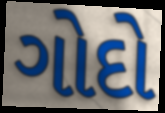
ગોદો